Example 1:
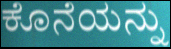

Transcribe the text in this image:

ಕೊನೆಯನ್ನು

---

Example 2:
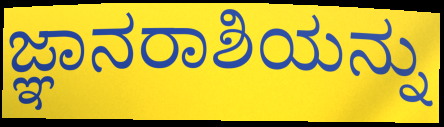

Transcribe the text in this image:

ಜ್ಞಾನರಾಶಿಯನ್ನು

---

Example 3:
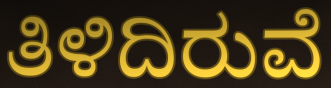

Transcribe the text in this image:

ತಿಳಿದಿರುವೆ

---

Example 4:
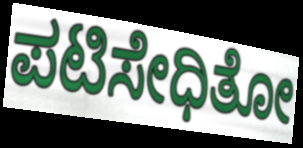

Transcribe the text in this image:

ಪಟಿಸೇಧಿತೋ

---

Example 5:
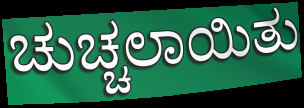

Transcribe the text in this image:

ಚುಚ್ಚಲಾಯಿತು